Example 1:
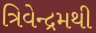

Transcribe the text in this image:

ત્રિવેન્દ્રમથી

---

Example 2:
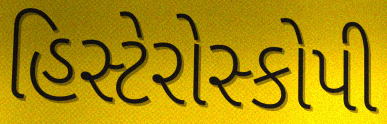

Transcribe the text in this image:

હિસ્ટેરોસ્કોપી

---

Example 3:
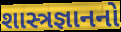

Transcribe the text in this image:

શાસ્ત્રજ્ઞાનનો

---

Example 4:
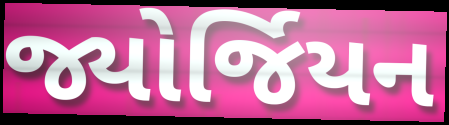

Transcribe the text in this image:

જ્યોર્જિયન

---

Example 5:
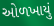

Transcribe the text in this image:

ઓળખાયું